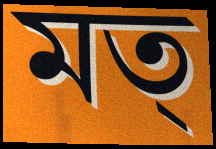
মত্